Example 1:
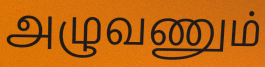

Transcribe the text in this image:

அழுவணும்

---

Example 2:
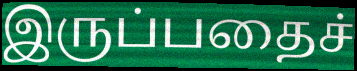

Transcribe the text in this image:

இருப்பதைச்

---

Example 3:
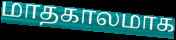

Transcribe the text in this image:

மாதகாலமாக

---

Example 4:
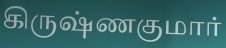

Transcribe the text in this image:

கிருஷ்ணகுமார்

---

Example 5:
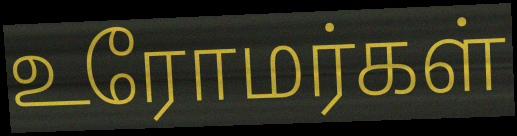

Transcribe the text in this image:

உரோமர்கள்